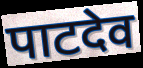
पाटदेव